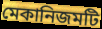
মেকানিজমটি